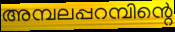
അമ്പലപ്പറമ്പിന്റെ